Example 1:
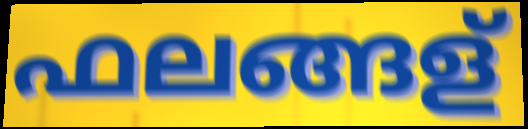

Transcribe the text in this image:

ഫലങ്ങള്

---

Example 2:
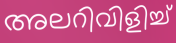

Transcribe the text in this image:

അലറിവിളിച്ച്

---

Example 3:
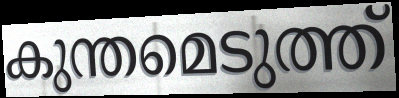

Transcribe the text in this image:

കുന്തമെടുത്ത്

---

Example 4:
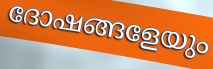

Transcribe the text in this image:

ദോഷങ്ങളേയും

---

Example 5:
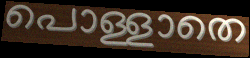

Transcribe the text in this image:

പൊള്ളാതെ